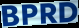
BPRD